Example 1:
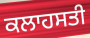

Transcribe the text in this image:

ਕਲਾਹਸਤੀ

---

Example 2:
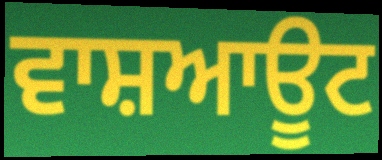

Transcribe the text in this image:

ਵਾਸ਼ਆਊਟ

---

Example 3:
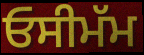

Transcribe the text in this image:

ਓਸੀਮੱਮ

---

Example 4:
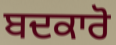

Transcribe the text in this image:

ਬਦਕਾਰੋ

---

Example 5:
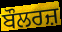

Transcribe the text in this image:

ਬੌਲਰਜ਼